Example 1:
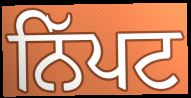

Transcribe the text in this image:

ਨਿੱਪਟ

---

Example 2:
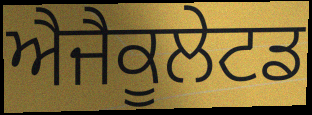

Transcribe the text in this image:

ਐਜੈਕੂਲੇਟਡ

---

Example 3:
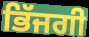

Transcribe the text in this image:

ਭਿੱਜਗੀ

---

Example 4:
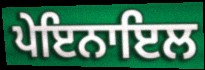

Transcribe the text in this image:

ਪੇਇਨਾਇਲ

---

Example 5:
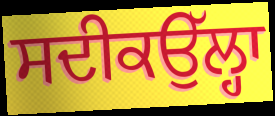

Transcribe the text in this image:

ਸਦੀਕਉੱਲ੍ਹਾ